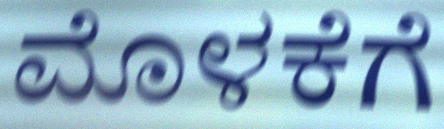
ಮೊಳಕೆಗೆ